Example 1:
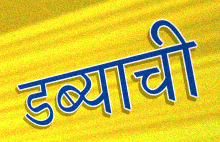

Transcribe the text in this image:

डब्याची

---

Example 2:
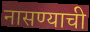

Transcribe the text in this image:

नासण्याची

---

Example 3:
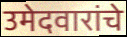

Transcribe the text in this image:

उमेदवारांचे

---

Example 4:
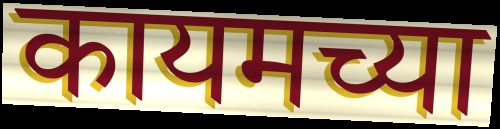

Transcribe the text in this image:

कायमच्या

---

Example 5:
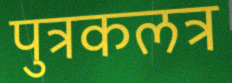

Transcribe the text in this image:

पुत्रकलत्र